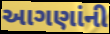
આગણાંની